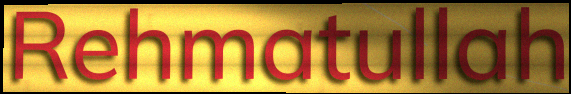
Rehmatullah